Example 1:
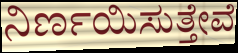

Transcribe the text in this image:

ನಿರ್ಣಯಿಸುತ್ತೇವೆ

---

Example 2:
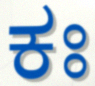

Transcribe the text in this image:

ಕಃ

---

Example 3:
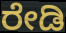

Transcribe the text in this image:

ರೇಡಿ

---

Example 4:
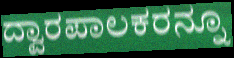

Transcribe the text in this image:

ದ್ವಾರಪಾಲಕರನ್ನೂ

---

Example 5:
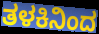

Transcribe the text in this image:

ತಳಕಿನಿಂದ